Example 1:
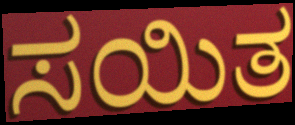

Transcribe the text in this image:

ಸಯಿತ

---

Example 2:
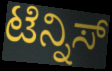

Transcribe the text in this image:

ಟೆನ್ನಿಸ್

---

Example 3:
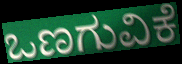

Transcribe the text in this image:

ಒಣಗುವಿಕೆ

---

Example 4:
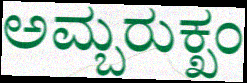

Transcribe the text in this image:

ಅಮ್ಬರುಕ್ಖಂ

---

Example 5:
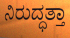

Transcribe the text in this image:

ನಿರುದ್ಧತ್ತಾ